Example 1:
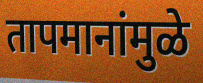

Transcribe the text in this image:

तापमानांमुळे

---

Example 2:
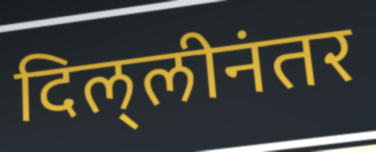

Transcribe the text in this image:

दिल्लीनंतर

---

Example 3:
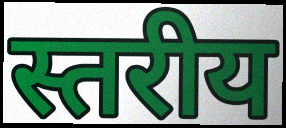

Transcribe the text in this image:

स्तरीय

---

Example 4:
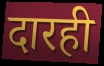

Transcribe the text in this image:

दारही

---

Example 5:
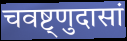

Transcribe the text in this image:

चवष्ट्णुदासां